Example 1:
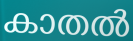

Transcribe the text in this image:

കാതൽ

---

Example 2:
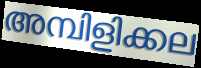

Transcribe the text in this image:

അമ്പിളിക്കല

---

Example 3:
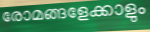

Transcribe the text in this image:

രോമങ്ങളേക്കാളും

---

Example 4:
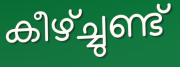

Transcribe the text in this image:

കീഴ്ച്ചുണ്ട്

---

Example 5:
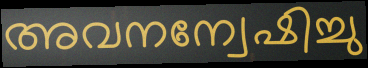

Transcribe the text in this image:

അവനന്വേഷിച്ചു